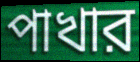
পাখার